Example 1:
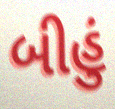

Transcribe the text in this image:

બીહું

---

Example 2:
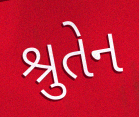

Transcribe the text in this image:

શ્રુતેન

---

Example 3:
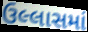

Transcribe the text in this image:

ઉલ્લાસમાં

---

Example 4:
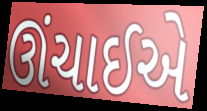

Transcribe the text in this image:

ઊંચાઈએ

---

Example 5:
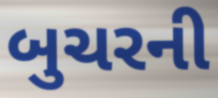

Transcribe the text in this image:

બુચરની